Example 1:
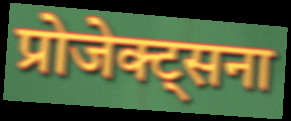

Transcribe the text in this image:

प्रोजेक्ट्सना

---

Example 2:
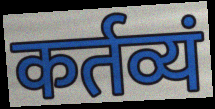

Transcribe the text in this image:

कर्तव्यं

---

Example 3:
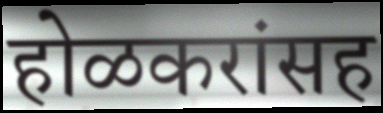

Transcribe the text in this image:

होळकरांसह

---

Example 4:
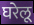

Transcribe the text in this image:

घरेलू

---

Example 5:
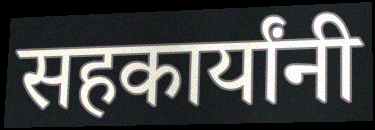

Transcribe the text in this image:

सहकार्यांनी